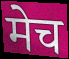
मेच